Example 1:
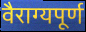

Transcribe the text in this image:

वैराग्यपूर्ण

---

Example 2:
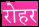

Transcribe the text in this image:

रोहर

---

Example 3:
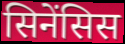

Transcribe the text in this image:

सिनेंसिस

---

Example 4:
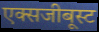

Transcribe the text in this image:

एक्सजीबूस्ट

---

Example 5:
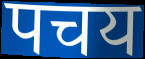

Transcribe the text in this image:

पचय